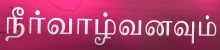
நீர்வாழ்வனவும்